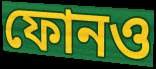
ফোনও